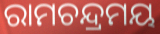
ରାମଚନ୍ଦ୍ରମୟ